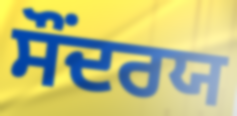
ਸੌਂਦਰਯ